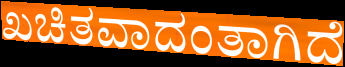
ಖಚಿತವಾದಂತಾಗಿದೆ